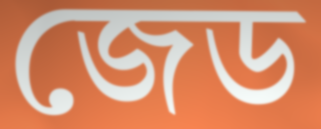
জেড